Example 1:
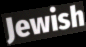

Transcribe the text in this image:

Jewish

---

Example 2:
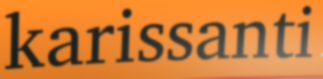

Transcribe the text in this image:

karissanti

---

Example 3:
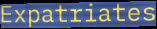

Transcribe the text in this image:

Expatriates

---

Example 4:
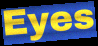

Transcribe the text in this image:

Eyes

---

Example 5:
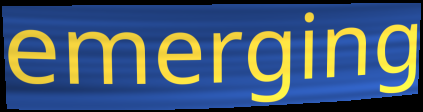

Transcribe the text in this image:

emerging